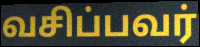
வசிப்பவர்